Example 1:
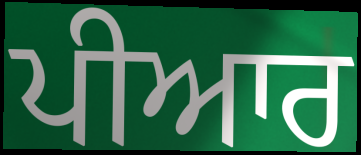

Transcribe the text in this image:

ਪੀਆਰ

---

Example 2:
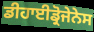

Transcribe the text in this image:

ਡੀਹਾਈਡ੍ਰੋਜੇਨੇਸ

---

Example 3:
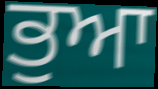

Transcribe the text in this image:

ਭੁਆ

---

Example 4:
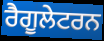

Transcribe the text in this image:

ਰੈਗੂਲੇਟਰਨ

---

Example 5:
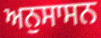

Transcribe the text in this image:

ਅਨੁਸਾਸਨ